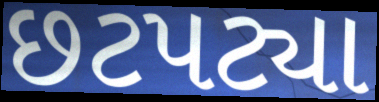
છટપટ્યા